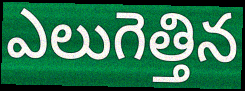
ఎలుగెత్తిన